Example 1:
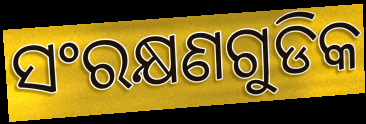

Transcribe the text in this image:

ସଂରକ୍ଷଣଗୁଡିକ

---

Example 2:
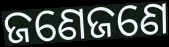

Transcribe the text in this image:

ଜଣେଜଣେ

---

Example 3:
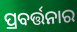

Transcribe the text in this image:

ପ୍ରବର୍ତ୍ତନାର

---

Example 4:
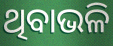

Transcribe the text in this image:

ଥିବାଭଳି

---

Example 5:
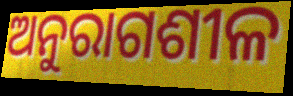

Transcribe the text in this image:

ଅନୁରାଗଶୀଳ